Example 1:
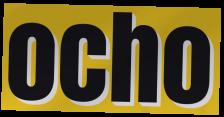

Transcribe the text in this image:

ocho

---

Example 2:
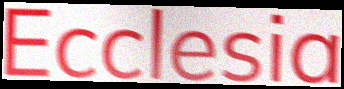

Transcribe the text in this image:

Ecclesia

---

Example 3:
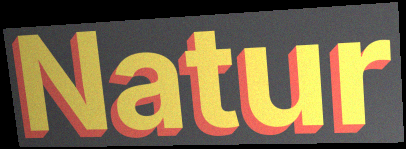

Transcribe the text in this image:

Natur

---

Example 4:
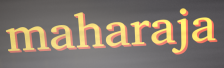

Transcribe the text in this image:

maharaja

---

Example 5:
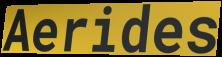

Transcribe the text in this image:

Aerides